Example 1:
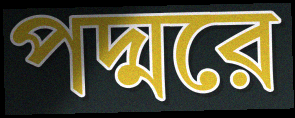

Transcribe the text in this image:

পদ্মরে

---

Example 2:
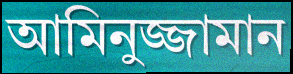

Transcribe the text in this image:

আমিনুজ্জামান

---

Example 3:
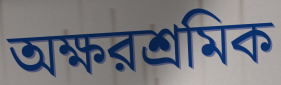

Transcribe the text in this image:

অক্ষরশ্রমিক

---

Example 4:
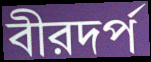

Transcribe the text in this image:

বীরদর্প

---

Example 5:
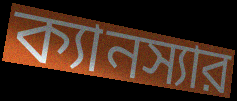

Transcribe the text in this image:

ক্যানস্যার